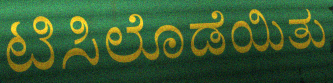
ಟಿಸಿಲೊಡೆಯಿತು